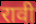
रावी